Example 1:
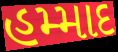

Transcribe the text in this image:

હમ્માદ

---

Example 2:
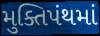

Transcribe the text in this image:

મુક્તિપંથમાં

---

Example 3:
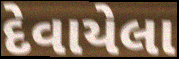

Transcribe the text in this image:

દેવાયેલા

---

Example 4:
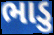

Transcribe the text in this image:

ભાડુ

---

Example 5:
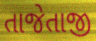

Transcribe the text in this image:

તાજેતાજી